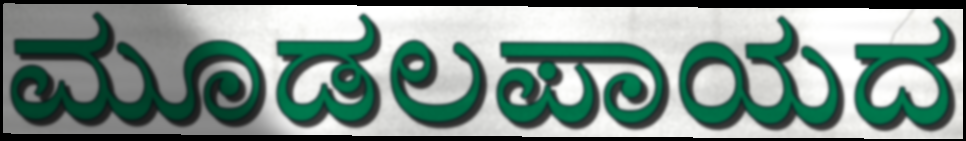
ಮೂಡಲಪಾಯದ